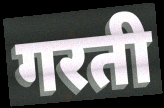
गरती